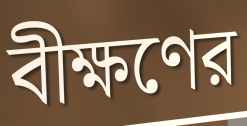
বীক্ষণের